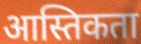
आस्तिकता